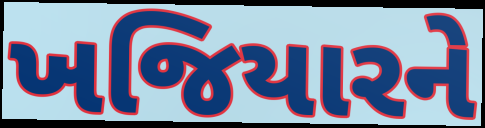
ખજિયારને